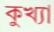
কুখ্যা